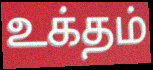
உக்தம்